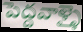
పెద్దవాళ్ళై